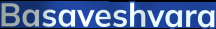
Basaveshvara